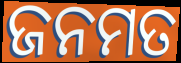
ଜନମତ